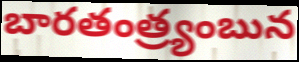
బారతంత్ర్యంబున